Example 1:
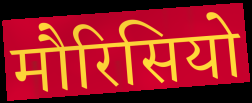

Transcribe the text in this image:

मौरिसियो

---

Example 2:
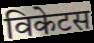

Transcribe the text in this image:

विकेटस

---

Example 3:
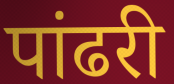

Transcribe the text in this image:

पांढरी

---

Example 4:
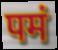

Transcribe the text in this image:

पमं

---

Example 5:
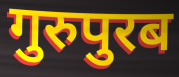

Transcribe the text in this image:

गुरुपुरब